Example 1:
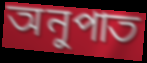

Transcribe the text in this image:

অনুপাত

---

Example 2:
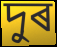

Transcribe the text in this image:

দুৰ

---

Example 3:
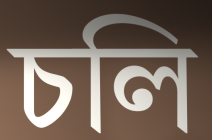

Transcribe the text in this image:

চলি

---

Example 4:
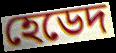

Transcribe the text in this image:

হেডেদ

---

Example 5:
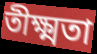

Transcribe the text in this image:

তীক্ষ্মতা